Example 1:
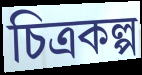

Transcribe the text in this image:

চিত্ৰকল্প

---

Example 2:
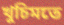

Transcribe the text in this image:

খুচিমতে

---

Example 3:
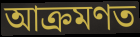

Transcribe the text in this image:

আক্ৰমণত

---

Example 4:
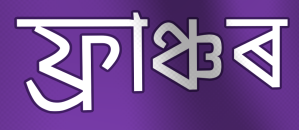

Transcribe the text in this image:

ফ্ৰাঞ্চৰ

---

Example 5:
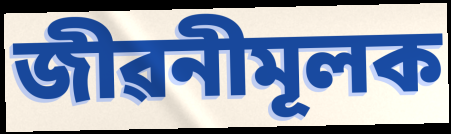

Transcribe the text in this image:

জীৱনীমূলক